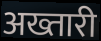
अख्तारी